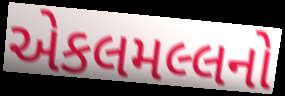
એકલમલ્લનો